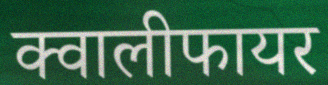
क्वालीफायर